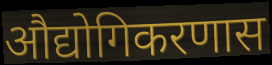
औद्योगिकरणास